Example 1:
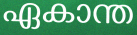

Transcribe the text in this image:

ഏകാന്ത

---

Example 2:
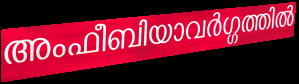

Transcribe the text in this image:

അംഫീബിയാവർഗ്ഗത്തിൽ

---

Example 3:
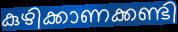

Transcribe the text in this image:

കുഴിക്കാണക്കണ്ടി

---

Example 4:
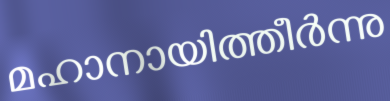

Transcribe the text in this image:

മഹാനായിത്തീർന്നു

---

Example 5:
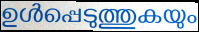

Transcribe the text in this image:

ഉൾപ്പെടുത്തുകയും